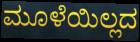
ಮೂಳೆಯಿಲ್ಲದ